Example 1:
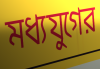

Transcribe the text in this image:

মধ্যযুগের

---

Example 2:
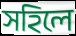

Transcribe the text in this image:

সহিলে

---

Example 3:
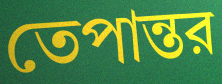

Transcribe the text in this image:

তেপান্তর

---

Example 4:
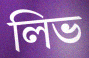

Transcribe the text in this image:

লিভ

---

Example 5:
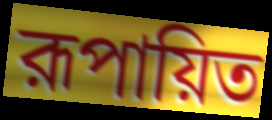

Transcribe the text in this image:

রূপায়িত